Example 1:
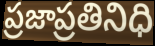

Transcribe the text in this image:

ప్రజాప్రతినిధి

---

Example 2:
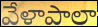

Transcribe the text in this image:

వేళాపాలా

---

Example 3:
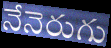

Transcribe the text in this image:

నేనెరుగు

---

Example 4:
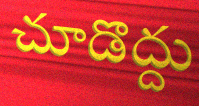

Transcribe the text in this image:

చూడొద్దు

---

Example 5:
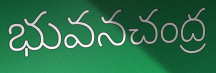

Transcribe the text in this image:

భువనచంద్ర